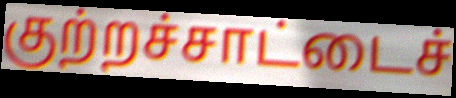
குற்றச்சாட்டைச்